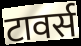
टावर्स